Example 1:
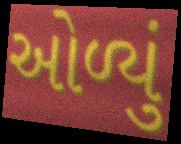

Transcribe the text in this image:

ઓળ્યું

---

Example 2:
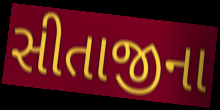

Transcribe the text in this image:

સીતાજીના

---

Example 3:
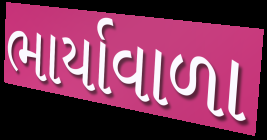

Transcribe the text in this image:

ભાર્યાવાળા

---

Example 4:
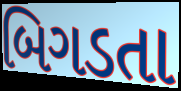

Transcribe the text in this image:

બિગડતા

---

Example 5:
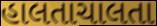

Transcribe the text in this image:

હાલતાચાલતા